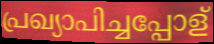
പ്രഖ്യാപിച്ചപ്പോള്